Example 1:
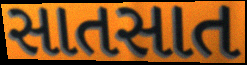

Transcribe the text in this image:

સાતસાત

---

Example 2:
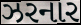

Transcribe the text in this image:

ઝરનાર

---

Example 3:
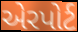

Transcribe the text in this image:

એરપોર્ટ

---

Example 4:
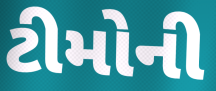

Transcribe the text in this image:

ટીમોની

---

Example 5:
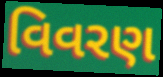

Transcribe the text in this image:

વિવરણ